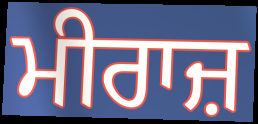
ਮੀਰਾਜ਼